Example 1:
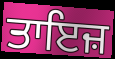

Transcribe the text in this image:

ਤਾਇਜ਼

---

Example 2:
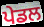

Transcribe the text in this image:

ਪੇਡਲ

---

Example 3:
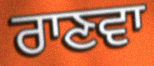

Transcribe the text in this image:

ਰਾਣਵਾ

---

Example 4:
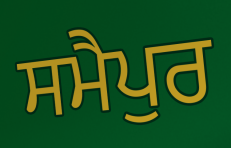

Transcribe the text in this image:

ਸਮੈਪੁਰ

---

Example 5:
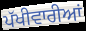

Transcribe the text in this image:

ਪੱਖੀਵਾਰੀਆਂ